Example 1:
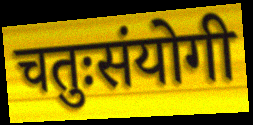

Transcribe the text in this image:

चतुःसंयोगी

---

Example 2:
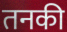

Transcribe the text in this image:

तनकी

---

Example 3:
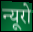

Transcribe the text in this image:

न्यूरो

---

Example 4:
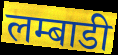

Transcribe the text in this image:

लम्बाडी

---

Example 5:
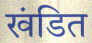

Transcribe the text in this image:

खंडित